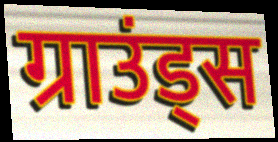
ग्राउंड्स